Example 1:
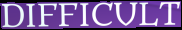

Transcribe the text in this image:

DIFFICULT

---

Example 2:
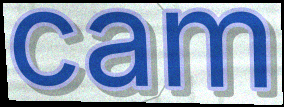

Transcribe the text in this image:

cam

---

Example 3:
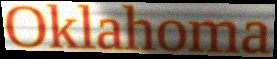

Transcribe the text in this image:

Oklahoma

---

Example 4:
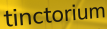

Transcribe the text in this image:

tinctorium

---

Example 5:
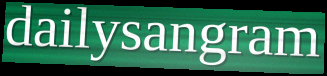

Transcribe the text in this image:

dailysangram